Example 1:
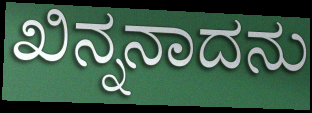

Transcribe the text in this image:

ಖಿನ್ನನಾದನು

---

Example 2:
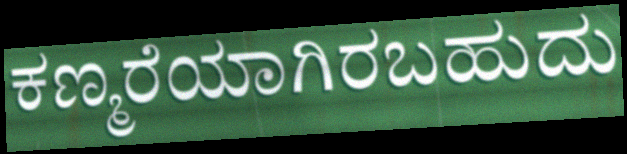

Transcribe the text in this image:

ಕಣ್ಮರೆಯಾಗಿರಬಹುದು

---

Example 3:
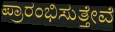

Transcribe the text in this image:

ಪ್ರಾರಂಭಿಸುತ್ತೇವೆ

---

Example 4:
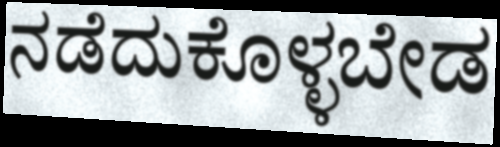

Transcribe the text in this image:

ನಡೆದುಕೊಳ್ಳಬೇಡ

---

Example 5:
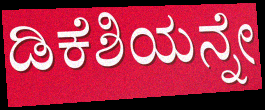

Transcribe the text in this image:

ಡಿಕೆಶಿಯನ್ನೇ